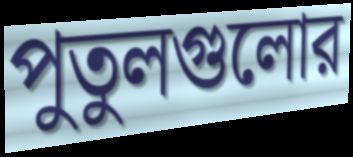
পুতুলগুলোর